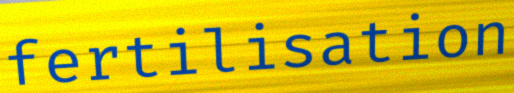
fertilisation